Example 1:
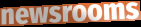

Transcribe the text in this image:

newsrooms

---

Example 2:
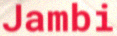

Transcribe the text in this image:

Jambi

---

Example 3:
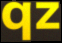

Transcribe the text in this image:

qz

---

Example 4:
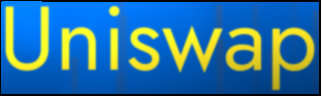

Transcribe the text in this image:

Uniswap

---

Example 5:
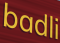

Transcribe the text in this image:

badli